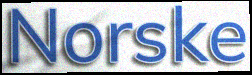
Norske